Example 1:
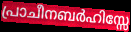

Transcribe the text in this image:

പ്രാചീനബർഹിസ്സേ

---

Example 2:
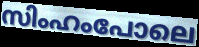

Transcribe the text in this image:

സിംഹംപോലെ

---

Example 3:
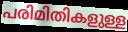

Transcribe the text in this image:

പരിമിതികളുള്ള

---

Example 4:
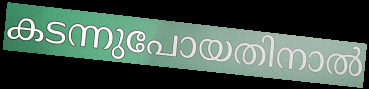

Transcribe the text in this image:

കടന്നുപോയതിനാൽ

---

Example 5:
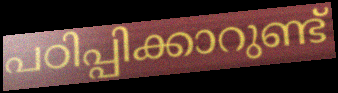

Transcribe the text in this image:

പഠിപ്പിക്കാറുണ്ട്